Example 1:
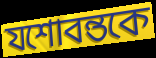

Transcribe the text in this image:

যশোবন্তকে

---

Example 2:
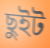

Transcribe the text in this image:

ছুইট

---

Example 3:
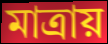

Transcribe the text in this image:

মাত্রায়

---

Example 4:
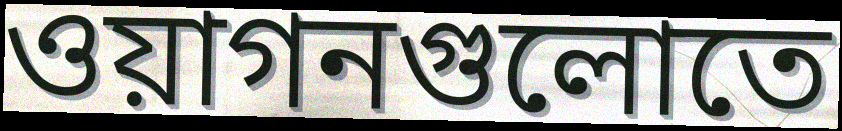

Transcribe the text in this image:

ওয়াগনগুলোতে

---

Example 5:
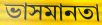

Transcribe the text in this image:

ভাসমানতা